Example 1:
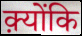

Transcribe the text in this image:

क़्योंकि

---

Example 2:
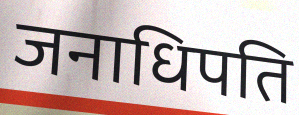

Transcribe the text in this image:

जनाधिपति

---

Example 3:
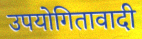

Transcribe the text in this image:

उपयोगितावादी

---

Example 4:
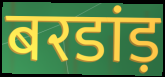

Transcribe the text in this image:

बरडांड़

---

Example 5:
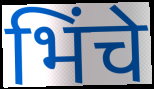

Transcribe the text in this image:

भिंचे